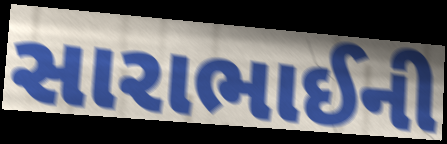
સારાભાઈની